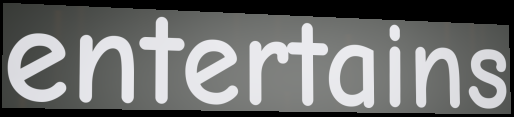
entertains